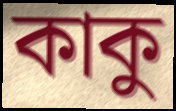
কাকু